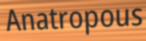
Anatropous